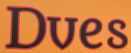
Dues